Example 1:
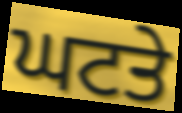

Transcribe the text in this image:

ਘਟਤੇ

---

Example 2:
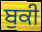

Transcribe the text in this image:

ਬੁਕੀ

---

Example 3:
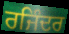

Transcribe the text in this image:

ਰਜਿੰਦਰ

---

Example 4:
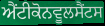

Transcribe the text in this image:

ਐਂਟੀਕੋਨਵੂਲਸੈਂਟਸ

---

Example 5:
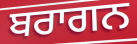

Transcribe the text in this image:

ਬਰਾਗਨ